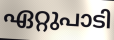
ഏറ്റുപാടി